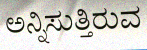
ಅನ್ನಿಸುತ್ತಿರುವ